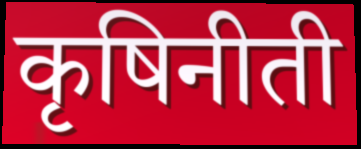
कृषिनीती